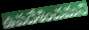
ఉపదేశించమని